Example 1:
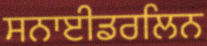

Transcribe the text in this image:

ਸਨਾਈਡਰਲਿਨ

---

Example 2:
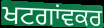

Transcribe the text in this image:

ਖਟਗਾਂਵਕਰ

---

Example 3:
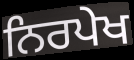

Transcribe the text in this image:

ਨਿਰਪੇਖ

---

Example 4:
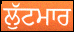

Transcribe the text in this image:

ਲੁੱਟਮਾਰ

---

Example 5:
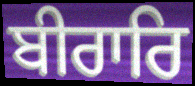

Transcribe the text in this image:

ਬੀਰਾਰਿ